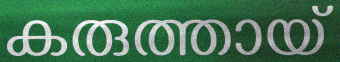
കരുത്തായ്